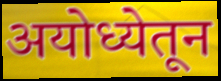
अयोध्येतून